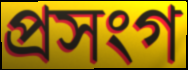
প্রসংগ